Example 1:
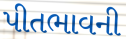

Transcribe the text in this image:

પીતભાવની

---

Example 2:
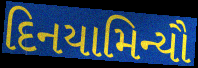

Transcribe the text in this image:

દિનયામિન્યૌ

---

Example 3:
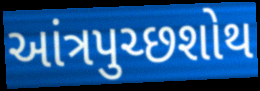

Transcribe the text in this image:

આંત્રપુચ્છશોથ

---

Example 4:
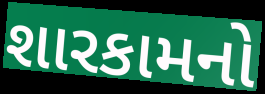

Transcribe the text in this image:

શારકામનો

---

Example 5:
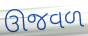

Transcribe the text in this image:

ઊજવળ